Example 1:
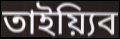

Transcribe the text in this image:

তাইয়্যিব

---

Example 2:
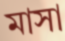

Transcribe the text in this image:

মাসা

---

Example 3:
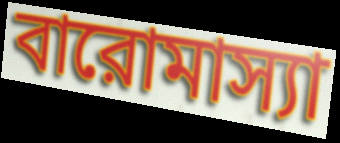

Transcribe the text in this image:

বারোমাস্যা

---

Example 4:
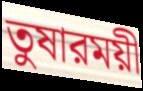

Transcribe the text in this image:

তুষারময়ী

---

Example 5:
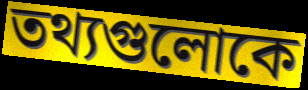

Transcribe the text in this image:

তথ্যগুলোকে